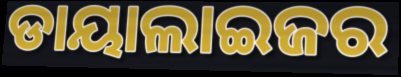
ଡାୟାଲାଇଜର